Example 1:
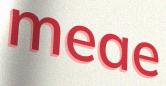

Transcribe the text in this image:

meae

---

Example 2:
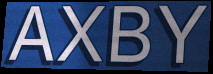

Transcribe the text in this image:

AXBY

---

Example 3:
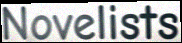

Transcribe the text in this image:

Novelists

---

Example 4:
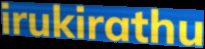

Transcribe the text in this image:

irukirathu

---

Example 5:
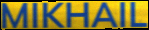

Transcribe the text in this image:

MIKHAIL